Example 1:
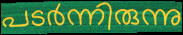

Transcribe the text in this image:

പടർന്നിരുന്നു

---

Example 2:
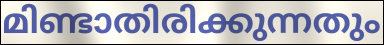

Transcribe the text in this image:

മിണ്ടാതിരിക്കുന്നതും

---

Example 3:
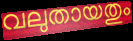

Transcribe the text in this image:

വലുതായതും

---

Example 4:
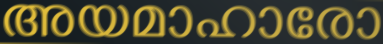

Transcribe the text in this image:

അയമാഹാരോ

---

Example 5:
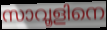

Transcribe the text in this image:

സാവൂളിനെ